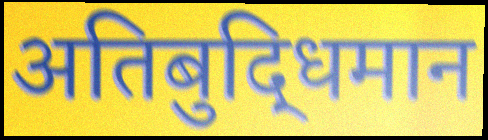
अतिबुद्धिमान